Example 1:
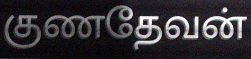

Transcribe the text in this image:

குணதேவன்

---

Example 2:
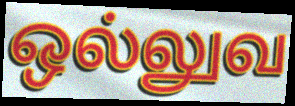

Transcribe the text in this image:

ஒல்லுவ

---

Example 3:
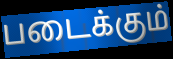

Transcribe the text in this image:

படைக்கும்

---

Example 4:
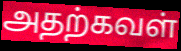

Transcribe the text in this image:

அதற்கவள்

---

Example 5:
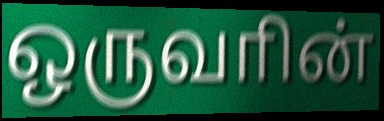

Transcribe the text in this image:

ஒருவரின்